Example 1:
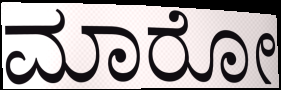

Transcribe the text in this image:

ಮಾರೋ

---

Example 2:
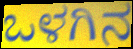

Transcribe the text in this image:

ಒಳಗಿನ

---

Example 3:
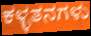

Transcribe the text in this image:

ಕಳ್ಳತನಗಳು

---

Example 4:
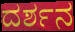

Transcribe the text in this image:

ದರ್ಶನ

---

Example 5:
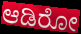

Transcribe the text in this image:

ಆಡಿರೋ